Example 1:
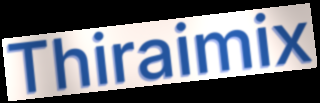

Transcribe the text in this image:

Thiraimix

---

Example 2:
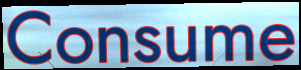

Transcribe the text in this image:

Consume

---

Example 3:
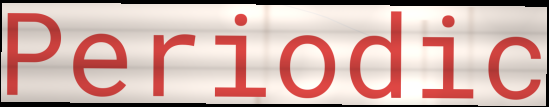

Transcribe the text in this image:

Periodic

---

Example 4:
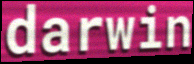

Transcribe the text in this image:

darwin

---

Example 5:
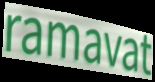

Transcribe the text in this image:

ramavat